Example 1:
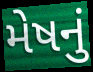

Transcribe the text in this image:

મેષનું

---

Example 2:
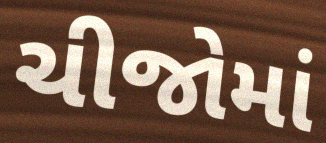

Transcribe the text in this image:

ચીજોમાં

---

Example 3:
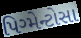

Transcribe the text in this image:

પિગ્મેન્ટોસા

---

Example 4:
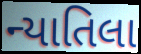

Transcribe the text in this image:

ન્યાતિલા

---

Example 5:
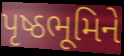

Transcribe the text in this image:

પૃષ્ઠભૂમિને